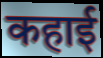
कहाई